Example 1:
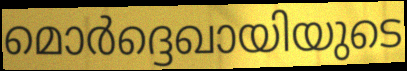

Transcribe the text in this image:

മൊർദ്ദെഖായിയുടെ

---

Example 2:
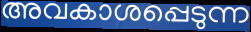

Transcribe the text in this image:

അവകാശപ്പെടുന്ന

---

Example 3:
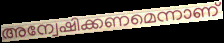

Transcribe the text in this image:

അന്വേഷിക്കണമെന്നാണ്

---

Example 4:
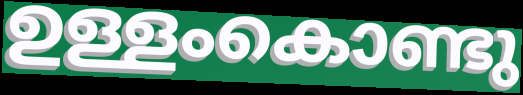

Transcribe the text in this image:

ഉള്ളംകൊണ്ടു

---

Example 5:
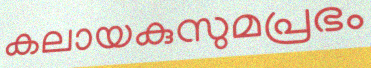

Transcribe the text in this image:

കലായകുസുമപ്രഭം